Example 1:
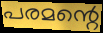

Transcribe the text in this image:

പരമന്റെ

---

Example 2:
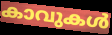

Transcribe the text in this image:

കാവുകൾ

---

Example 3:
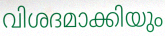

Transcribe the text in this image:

വിശദമാക്കിയും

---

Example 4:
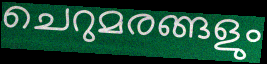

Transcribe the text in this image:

ചെറുമരങ്ങളും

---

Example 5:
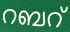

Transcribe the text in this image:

റബറ്